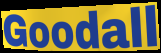
Goodall